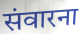
संवारना